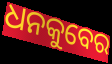
ଧନକୁବେର